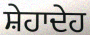
ਸ਼ੇਹਾਦੇਹ